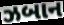
ઝબાન